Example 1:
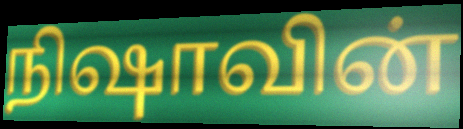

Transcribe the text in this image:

நிஷாவின்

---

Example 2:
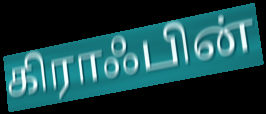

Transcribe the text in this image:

கிராஃபின்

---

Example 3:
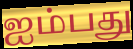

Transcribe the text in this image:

ஐம்பது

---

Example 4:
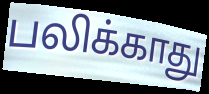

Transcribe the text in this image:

பலிக்காது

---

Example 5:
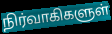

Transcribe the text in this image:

நிர்வாகிகளுள்